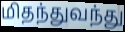
மிதந்துவந்து